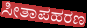
ಸೀತಾಪಹರಣ